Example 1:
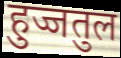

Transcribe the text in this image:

हुज्जतुल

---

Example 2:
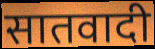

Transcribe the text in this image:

सातवादी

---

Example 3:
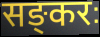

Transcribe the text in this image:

सङ्करः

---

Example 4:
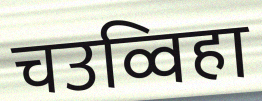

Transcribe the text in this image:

चउव्विहा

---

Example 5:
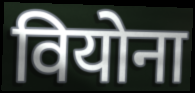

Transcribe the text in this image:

वियोना